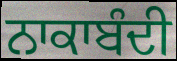
ਨਾਕਾਬੰਦੀ